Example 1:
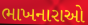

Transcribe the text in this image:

ભાખનારાઓ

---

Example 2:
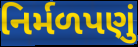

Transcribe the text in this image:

નિર્મળપણું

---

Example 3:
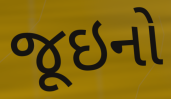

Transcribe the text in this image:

જૂઇનો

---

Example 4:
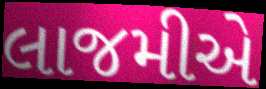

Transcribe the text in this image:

લાજમીએ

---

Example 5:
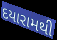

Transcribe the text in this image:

દયારામથી